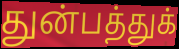
துன்பத்துக்